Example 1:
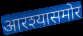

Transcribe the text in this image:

आरश्यासमोर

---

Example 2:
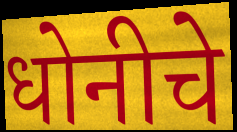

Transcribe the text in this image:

धोनीचे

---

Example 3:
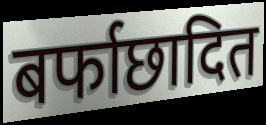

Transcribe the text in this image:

बर्फाछादित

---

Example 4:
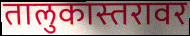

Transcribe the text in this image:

तालुकास्तरावर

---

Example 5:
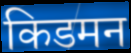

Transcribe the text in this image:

किडमन